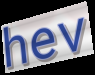
hev